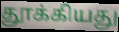
தூக்கியது